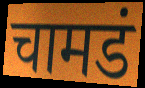
चामडं